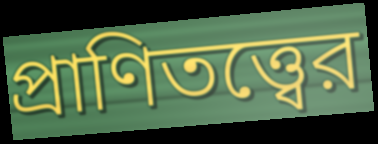
প্রাণিতত্ত্বের